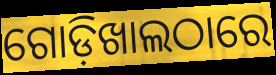
ଗୋଡ଼ିଖାଲଠାରେ